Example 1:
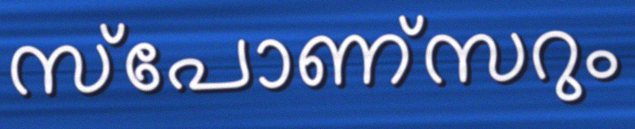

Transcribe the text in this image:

സ്പോണ്സറും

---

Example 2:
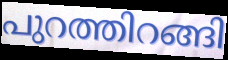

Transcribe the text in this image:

പുറത്തിറങ്ങി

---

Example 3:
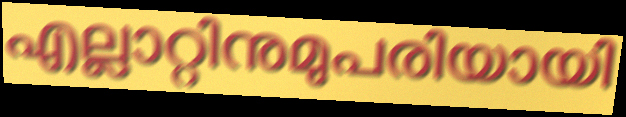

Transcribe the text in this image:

എല്ലാറ്റിനുമുപരിയായി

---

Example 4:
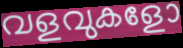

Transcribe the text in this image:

വളവുകളോ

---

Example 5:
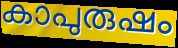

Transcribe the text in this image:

കാപുരുഷം